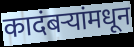
कादंबर्‍यांमधून